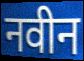
नवीन